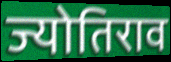
ज्योतिराव